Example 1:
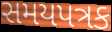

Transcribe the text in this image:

સમયપત્રક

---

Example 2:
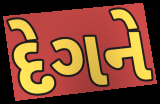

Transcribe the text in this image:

દેગને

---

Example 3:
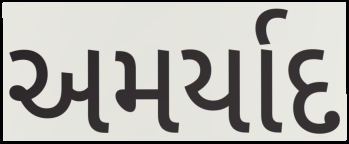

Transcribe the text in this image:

અમર્યાદ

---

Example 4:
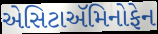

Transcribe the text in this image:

એસિટાઍમિનોફેન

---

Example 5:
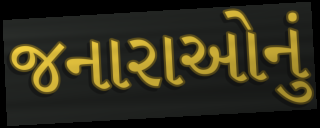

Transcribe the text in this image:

જનારાઓનું